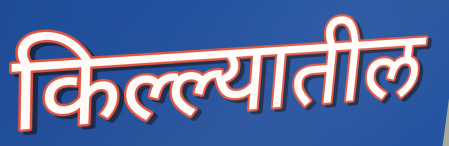
किल्ल्यातील